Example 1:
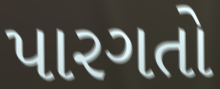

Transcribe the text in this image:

પારગતો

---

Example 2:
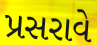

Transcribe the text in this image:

પ્રસરાવે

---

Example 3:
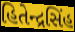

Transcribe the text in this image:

હિતેન્દ્રસિંહ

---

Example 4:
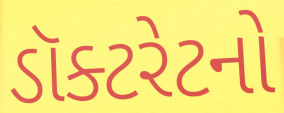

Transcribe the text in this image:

ડૉક્ટરેટનો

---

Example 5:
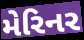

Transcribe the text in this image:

મેરિનર